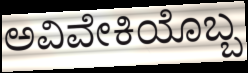
ಅವಿವೇಕಿಯೊಬ್ಬ